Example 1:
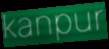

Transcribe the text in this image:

kanpur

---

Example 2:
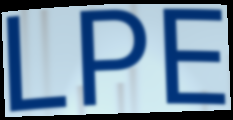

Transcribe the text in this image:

LPE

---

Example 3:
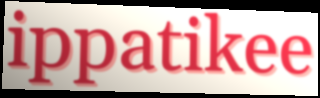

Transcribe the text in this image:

ippatikee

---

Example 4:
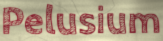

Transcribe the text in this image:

Pelusium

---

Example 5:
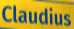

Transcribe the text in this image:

Claudius